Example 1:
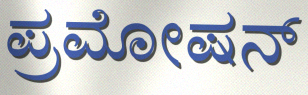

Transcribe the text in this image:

ಪ್ರಮೋಷನ್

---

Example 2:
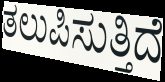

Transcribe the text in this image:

ತಲುಪಿಸುತ್ತಿದೆ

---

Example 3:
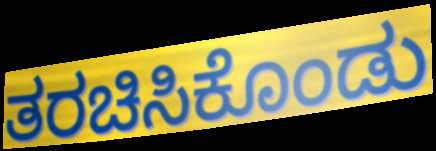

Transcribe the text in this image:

ತರಚಿಸಿಕೊಂಡು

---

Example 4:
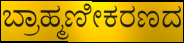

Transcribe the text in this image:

ಬ್ರಾಹ್ಮಣೀಕರಣದ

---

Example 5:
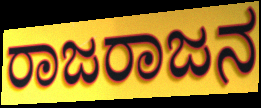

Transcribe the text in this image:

ರಾಜರಾಜನ